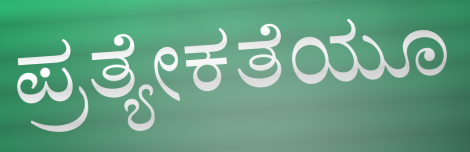
ಪ್ರತ್ಯೇಕತೆಯೂ